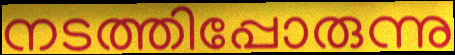
നടത്തിപ്പോരുന്നു